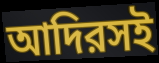
আদিরসই